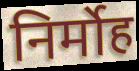
निर्मोह